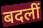
बदलीं